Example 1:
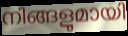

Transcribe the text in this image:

നിങ്ങളുമായി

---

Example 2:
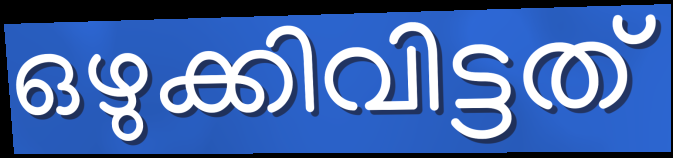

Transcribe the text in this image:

ഒഴുക്കിവിട്ടത്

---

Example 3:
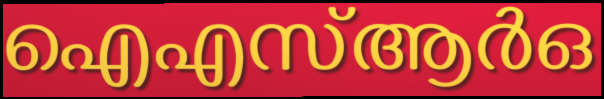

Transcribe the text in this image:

ഐഎസ്ആർഒ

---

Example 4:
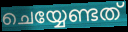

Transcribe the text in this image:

ചെയ്യേണ്ടത്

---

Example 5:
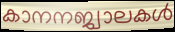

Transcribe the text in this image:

കാനനജ്വാലകൾ